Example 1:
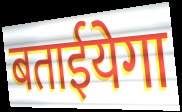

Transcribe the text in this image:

बताईयेगा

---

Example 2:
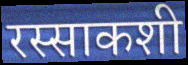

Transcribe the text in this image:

रस्साकशी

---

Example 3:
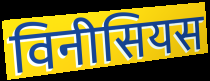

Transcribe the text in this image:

विनीसियस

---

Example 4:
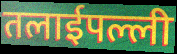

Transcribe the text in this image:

तलाईपल्ली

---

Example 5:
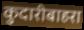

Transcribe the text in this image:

कुदारीबाहरा